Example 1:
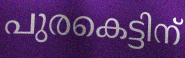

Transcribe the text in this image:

പുരകെട്ടിന്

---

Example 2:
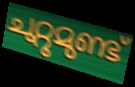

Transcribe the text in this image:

ചുറ്റുമുണ്ട്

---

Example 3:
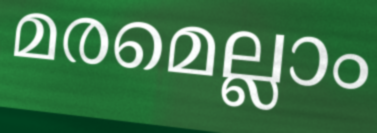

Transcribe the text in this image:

മരമെല്ലാം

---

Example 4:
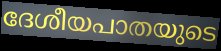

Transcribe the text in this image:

ദേശീയപാതയുടെ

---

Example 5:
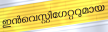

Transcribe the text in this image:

ഇൻവെസ്റ്റിഗേറ്ററുമായ